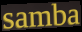
samba